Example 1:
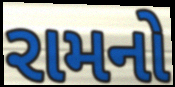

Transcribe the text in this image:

રામનો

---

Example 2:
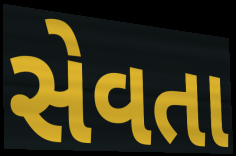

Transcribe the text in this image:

સેવતા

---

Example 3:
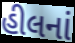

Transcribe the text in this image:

હીલનાં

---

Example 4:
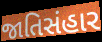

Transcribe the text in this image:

જાતિસંહાર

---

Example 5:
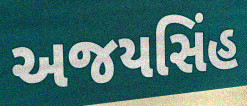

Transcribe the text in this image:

અજયસિંહ